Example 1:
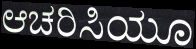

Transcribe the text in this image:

ಆಚರಿಸಿಯೂ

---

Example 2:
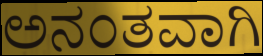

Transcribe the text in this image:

ಅನಂತವಾಗಿ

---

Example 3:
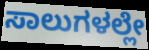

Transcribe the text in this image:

ಸಾಲುಗಳಲ್ಲೇ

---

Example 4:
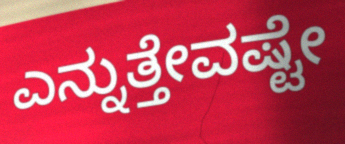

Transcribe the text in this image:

ಎನ್ನುತ್ತೇವಷ್ಟೇ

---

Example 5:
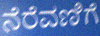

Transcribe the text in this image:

ನೆರೆವಣಿಗೆ